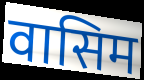
वासिम